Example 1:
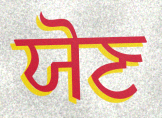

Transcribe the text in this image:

ਯੋਣ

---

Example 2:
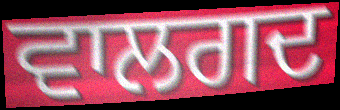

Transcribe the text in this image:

ਵਾਲਗਦ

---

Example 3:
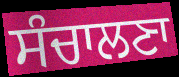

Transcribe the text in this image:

ਸੰਚਾਲਣਾ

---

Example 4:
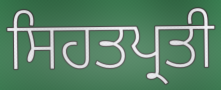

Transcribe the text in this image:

ਸਿਹਤਪ੍ਰਤੀ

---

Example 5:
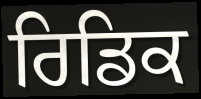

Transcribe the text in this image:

ਰਿਡਿਕ